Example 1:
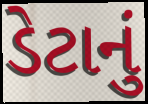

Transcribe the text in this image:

ડેટાનું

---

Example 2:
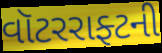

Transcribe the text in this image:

વૉટરરાફ્ટની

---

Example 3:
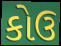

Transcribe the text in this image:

કોઉ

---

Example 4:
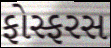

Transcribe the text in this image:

ફોસ્ફરસ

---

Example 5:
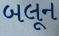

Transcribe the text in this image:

બલૂન